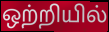
ஒற்றியில்